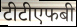
टीटीएफबी